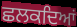
ਛਲਕਦਿਆਂ